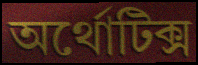
অর্থোটিক্স